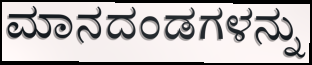
ಮಾನದಂಡಗಳನ್ನು